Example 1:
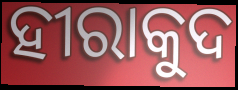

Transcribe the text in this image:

ହୀରାକୁଦ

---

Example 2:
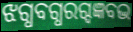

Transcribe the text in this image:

ଝଗ୍ଧବଗ୍ଧରଗ୍ଦଜ୍ଞବଦ୍ଭ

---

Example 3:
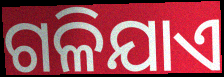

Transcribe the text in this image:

ଗଳିଯାଏ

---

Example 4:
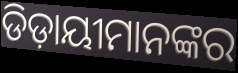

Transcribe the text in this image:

ଡିଡ଼ାୟୀମାନଙ୍କର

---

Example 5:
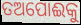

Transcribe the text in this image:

ତଅପୋଈକୁ